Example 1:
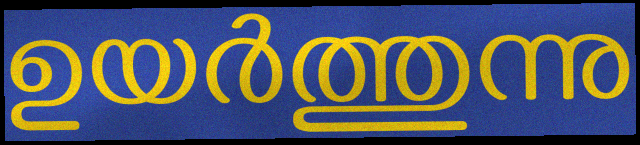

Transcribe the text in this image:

ഉയർത്തുന്നു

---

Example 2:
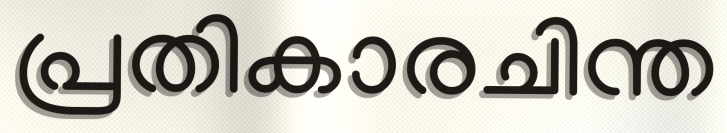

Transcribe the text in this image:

പ്രതികാരചിന്ത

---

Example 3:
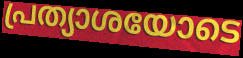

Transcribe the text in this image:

പ്രത്യാശയോടെ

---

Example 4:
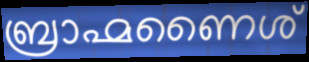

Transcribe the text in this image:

ബ്രാഹ്മണൈശ്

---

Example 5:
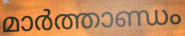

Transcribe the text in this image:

മാർത്താണ്ഡം